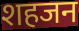
शहजन